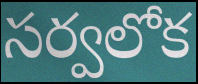
సర్వలోక